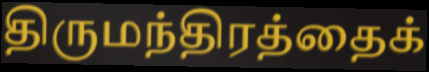
திருமந்திரத்தைக்